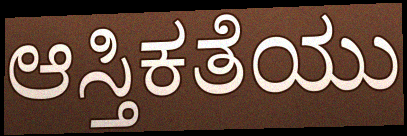
ಆಸ್ತಿಕತೆಯು